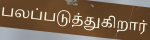
பலப்படுத்துகிறார்